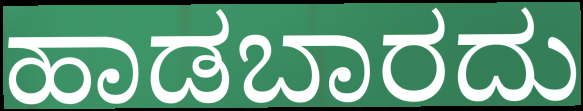
ಹಾಡಬಾರದು